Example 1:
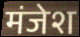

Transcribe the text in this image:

मंजेश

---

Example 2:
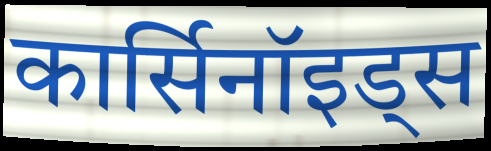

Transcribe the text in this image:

कार्सिनॉइड्स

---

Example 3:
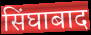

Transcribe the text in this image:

सिंघाबाद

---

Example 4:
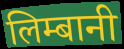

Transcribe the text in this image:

लिम्बानी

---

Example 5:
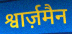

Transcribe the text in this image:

श्वार्ज़मैन